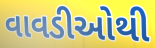
વાવડીઓથી